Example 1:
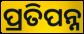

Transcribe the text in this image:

ପ୍ରତିପନ୍ନ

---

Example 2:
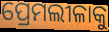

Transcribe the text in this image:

ପ୍ରେମଲୀଳାକୁ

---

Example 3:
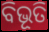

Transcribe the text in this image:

ବିଭୂତି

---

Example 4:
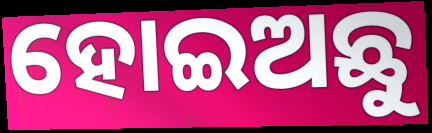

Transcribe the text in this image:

ହୋଇଅଛୁ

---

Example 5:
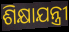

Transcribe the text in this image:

ଶିକ୍ଷାଯନ୍ତ୍ରୀ